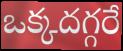
ఒక్కదగ్గరే